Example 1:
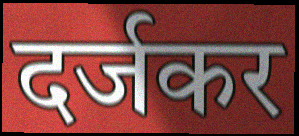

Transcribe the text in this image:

दर्जकर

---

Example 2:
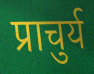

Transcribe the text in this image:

प्राचुर्य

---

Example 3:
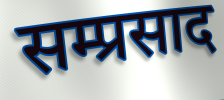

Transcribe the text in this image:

सम्प्रसाद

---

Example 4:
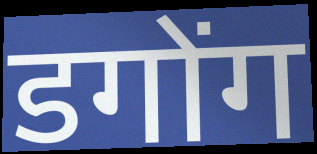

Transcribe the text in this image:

डगोंग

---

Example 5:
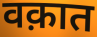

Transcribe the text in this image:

वक़ात